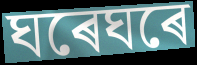
ঘৰেঘৰে